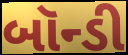
બૉન્ડી